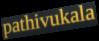
pathivukala